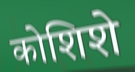
कोशिशे